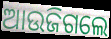
ଆଉଜିଗଲେ